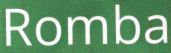
Romba